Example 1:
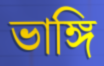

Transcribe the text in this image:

ভাঙ্গি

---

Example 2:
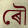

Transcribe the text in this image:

ৰৌ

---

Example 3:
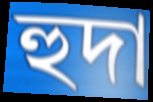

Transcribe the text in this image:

হুদা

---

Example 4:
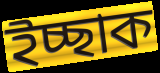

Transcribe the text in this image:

ইচ্ছাক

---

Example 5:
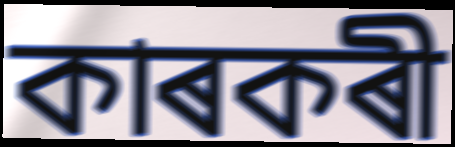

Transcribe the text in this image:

কাৰকৰী